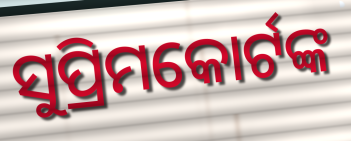
ସୁପ୍ରିମକୋର୍ଟଙ୍କ